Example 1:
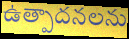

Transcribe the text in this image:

ఉత్పాదనలను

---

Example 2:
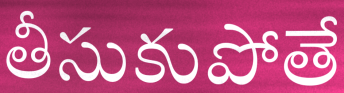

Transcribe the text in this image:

తీసుకుపోతే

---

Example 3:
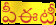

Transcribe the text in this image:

పీఈటీ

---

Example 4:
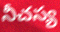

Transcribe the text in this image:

నీచస్య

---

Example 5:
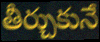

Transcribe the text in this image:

తీర్చుకునే